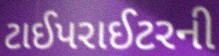
ટાઈપરાઈટરની